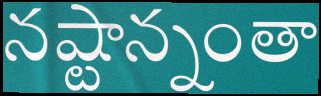
నష్టాన్నంతా